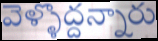
వెళ్ళొద్దన్నారు